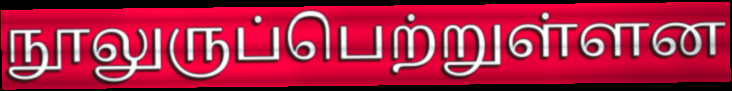
நூலுருப்பெற்றுள்ளன